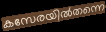
കസേരയിൽതന്നെ